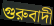
গুরুবাদী